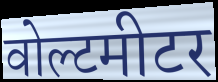
वोल्टमीटर